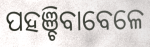
ପହଞ୍ଚିବାବେଳେ